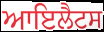
ਆਇਲੈਟਸ